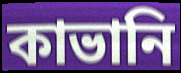
কাভানি